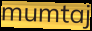
mumtaj